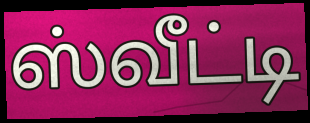
ஸ்வீட்டி